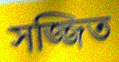
সজ্জিত